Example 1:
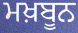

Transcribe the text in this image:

ਮਖ਼ਬੂਨ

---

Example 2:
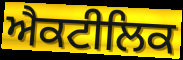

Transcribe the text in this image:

ਐਕਟੀਲਿਕ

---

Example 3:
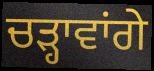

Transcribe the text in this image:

ਚੜ੍ਹਾਵਾਂਗੇ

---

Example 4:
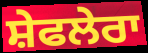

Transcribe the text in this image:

ਸ਼ੇਫਲੇਰਾ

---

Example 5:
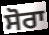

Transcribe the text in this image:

ਸੋਰਾ